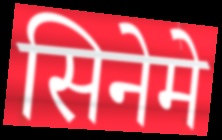
सिनेमे